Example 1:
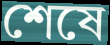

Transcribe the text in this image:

শেষে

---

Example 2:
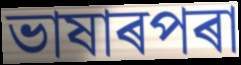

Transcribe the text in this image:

ভাষাৰপৰা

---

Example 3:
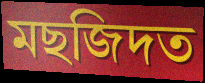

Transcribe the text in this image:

মছজিদত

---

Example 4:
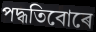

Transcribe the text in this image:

পদ্ধতিবোৰে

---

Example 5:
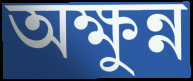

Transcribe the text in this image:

অক্ষুন্ন